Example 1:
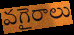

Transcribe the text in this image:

వగైరాలు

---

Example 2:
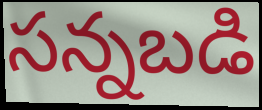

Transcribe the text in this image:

సన్నబడి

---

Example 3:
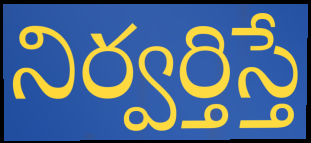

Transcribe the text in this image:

నిర్వర్తిస్తే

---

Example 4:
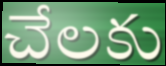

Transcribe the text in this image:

చేలకు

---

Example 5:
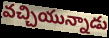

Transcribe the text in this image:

వచ్చియున్నాడు